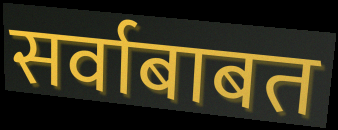
सर्वाबाबत